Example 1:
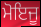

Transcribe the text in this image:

ਮੋਇਜੂ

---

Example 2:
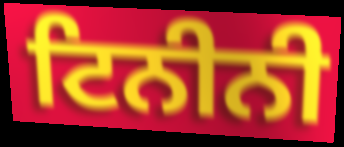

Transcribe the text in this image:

ਟਿਨੀਨੀ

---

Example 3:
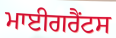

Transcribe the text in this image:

ਮਾਈਗਰੈਂਟਸ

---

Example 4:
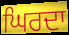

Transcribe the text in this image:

ਘਿਰਦਾ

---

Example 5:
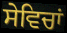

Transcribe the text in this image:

ਸੇਵਿਚਾਂ